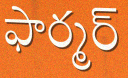
ఫార్మర్